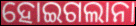
ହୋଇଗଲାନା